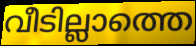
വീടില്ലാത്തെ